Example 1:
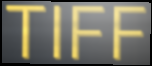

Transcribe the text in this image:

TIFF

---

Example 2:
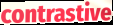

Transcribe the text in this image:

contrastive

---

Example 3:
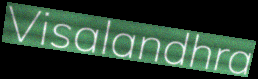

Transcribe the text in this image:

Visalandhra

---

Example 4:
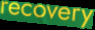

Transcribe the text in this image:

recovery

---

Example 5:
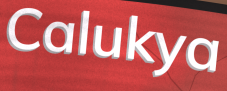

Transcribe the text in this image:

Calukya